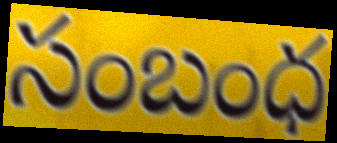
సంబంధ